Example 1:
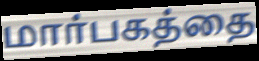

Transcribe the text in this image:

மார்பகத்தை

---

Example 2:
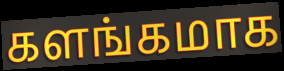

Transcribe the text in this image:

களங்கமாக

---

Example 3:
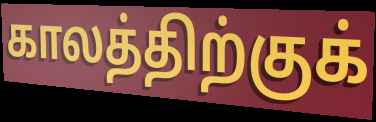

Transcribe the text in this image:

காலத்திற்குக்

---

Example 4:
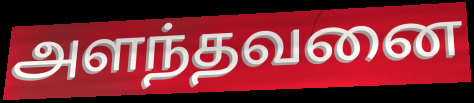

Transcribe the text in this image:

அளந்தவனை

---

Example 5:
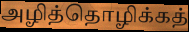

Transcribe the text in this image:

அழித்தொழிக்கத்